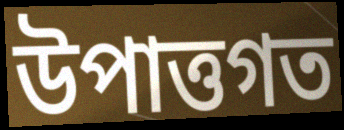
উপাত্তগত